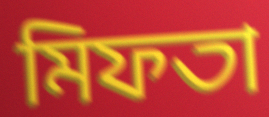
মিফতা